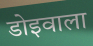
डोइवाला